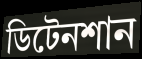
ডিটেনশান